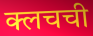
क्लचची